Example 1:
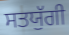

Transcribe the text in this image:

ਸਤਯੁੱਗੀ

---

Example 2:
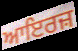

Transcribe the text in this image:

ਆਇਰਜ਼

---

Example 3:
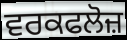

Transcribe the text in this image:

ਵਰਕਫਲੋਜ਼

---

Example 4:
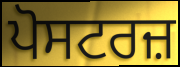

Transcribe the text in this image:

ਪੋਸਟਰਜ਼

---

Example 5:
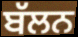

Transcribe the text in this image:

ਬੱਲਨ